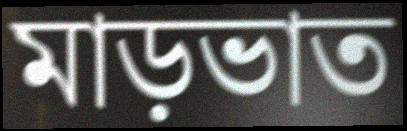
মাড়ভাত